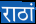
राठां